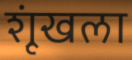
श्रृंखला